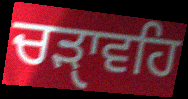
ਚੜੑਾਵਹਿ